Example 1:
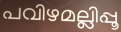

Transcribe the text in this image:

പവിഴമല്ലിപ്പൂ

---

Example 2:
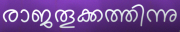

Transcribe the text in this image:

രാജതൂക്കത്തിന്നു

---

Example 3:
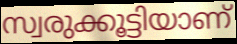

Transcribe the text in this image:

സ്വരുക്കൂട്ടിയാണ്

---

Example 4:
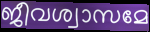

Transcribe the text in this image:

ജീവശ്വാസമേ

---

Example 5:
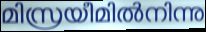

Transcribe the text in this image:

മിസ്രയീമിൽനിന്നു